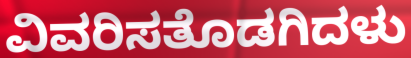
ವಿವರಿಸತೊಡಗಿದಳು